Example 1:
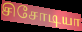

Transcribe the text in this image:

சிசோடியா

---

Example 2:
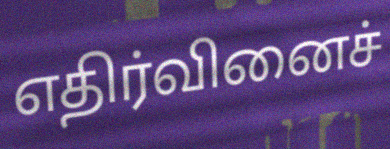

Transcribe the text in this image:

எதிர்வினைச்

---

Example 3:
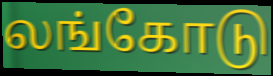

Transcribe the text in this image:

லங்கோடு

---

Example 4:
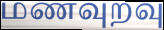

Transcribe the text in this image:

மணவுறவு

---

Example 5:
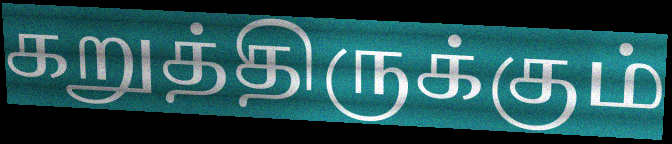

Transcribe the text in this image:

கறுத்திருக்கும்